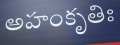
అహంకృతిః